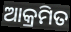
ଆକ୍ରମିତ